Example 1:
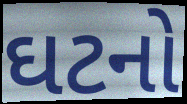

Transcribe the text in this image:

ઘટનો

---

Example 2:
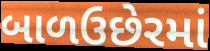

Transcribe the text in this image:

બાળઉછેરમાં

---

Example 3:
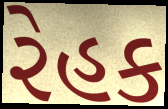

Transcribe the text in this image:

રેહક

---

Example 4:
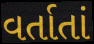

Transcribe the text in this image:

વર્તાતાં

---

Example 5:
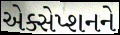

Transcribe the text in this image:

એક્સેપ્શનને